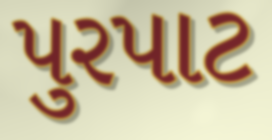
પુરપાટ